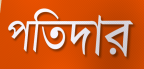
পতিদার